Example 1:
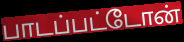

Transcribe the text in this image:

பாடப்பட்டோன்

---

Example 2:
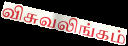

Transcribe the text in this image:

விசுவலிங்கம்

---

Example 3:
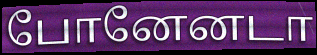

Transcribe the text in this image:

போனேனடா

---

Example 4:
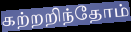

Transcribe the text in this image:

கற்றறிந்தோம்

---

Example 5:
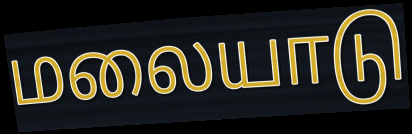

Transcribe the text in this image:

மலையாடு